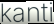
kanti